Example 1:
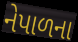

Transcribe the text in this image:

નેપાળના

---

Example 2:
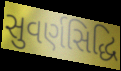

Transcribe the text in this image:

સુવર્ણસિદ્ધિ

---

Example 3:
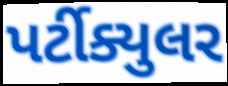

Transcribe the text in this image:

પર્ટીક્યુલર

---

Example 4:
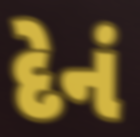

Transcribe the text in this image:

દેનં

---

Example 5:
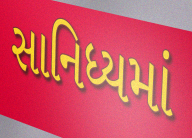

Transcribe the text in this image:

સાનિધ્યમાં